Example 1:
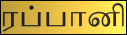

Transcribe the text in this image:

ரப்பானி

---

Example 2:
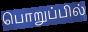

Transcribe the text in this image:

பொறுப்பில்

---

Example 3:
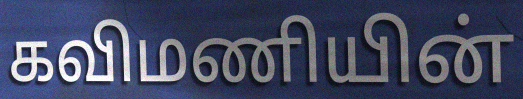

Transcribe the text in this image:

கவிமணியின்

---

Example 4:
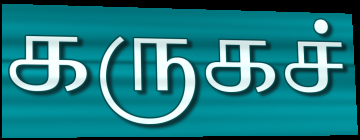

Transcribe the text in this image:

கருகச்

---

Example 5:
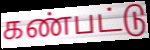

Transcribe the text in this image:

கண்பட்டு